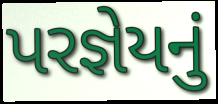
પરજ્ઞેયનું